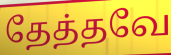
தேத்தவே